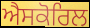
ਐਸਕੋਰਿਲ